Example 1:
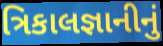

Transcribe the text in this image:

ત્રિકાલજ્ઞાનીનું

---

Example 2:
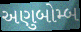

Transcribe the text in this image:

અણુબોમ્બ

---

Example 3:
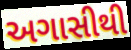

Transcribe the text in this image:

અગાસીથી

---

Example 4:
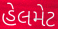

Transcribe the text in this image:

હેલમેટ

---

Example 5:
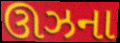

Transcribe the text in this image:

ઊઝના